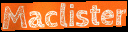
Maclister